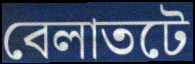
বেলাতটে